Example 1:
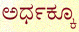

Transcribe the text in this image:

ಅರ್ಧಕ್ಕೂ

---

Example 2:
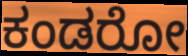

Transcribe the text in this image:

ಕಂಡರೋ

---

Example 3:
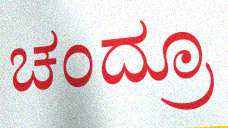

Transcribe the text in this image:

ಚಂದ್ರೂ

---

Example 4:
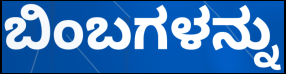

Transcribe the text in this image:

ಬಿಂಬಗಳನ್ನು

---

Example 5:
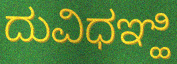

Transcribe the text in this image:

ದುವಿಧಞ್ಹಿ